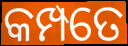
କମ୍ପତେ